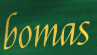
bomas